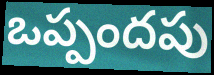
ఒప్పందపు